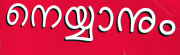
നെയ്യാനും